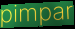
pimpar